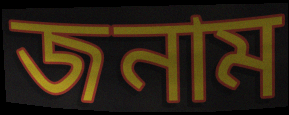
জনাম